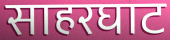
साहरघाट